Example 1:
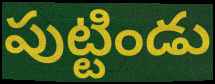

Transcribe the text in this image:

పుట్టిండు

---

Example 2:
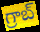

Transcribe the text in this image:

గ్రాబ్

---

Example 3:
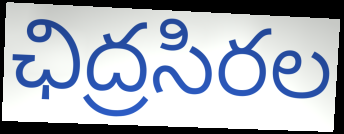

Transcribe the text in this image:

ఛిద్రసిరల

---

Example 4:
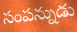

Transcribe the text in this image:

సంపన్నుడు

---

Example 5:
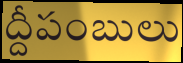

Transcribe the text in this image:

ద్దీపంబులు